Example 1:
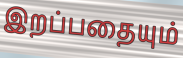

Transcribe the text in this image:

இறப்பதையும்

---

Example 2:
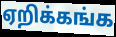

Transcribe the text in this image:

ஏறிக்கங்க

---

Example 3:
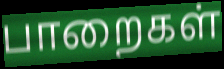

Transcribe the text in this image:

பாறைகள்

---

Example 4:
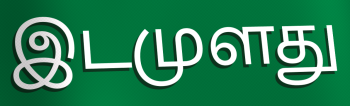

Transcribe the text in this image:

இடமுளது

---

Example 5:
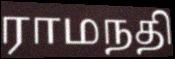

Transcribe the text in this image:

ராமநதி